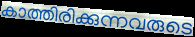
കാത്തിരിക്കുന്നവരുടെ